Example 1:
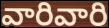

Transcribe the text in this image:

వారివారి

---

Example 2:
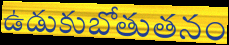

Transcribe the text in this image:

ఉడుకుబోతుతనం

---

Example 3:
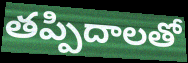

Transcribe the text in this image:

తప్పిదాలతో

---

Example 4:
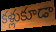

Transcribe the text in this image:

కళ్లుకూడా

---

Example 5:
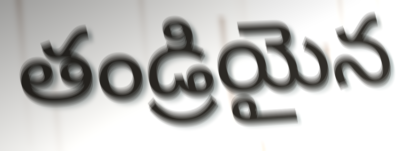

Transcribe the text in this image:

తండ్రియైన